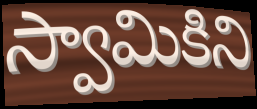
స్వామికిని